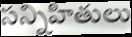
సన్నిహితులు